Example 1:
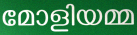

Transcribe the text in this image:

മോളിയമ്മ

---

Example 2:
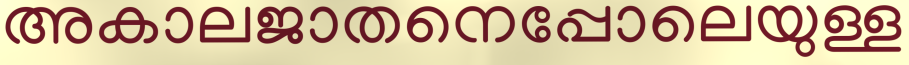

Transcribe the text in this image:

അകാലജാതനെപ്പോലെയുള്ള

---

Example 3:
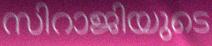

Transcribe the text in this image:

സിറാജിയുടെ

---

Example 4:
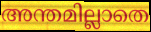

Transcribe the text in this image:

അന്തമില്ലാതെ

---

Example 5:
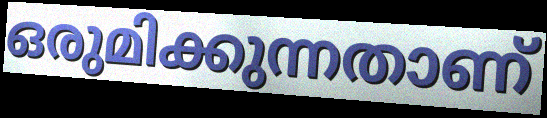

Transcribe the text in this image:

ഒരുമിക്കുന്നതാണ്